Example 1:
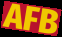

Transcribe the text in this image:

AFB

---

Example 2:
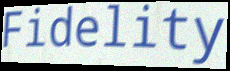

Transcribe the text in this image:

Fidelity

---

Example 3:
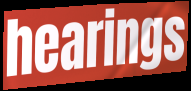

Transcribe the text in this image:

hearings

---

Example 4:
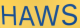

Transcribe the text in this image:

HAWS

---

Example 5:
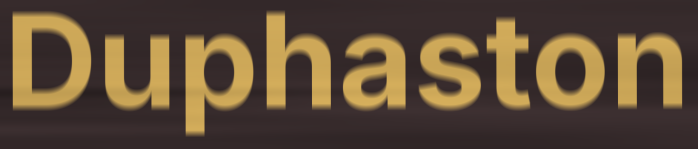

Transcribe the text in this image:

Duphaston